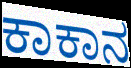
ಕಾಕಾನ